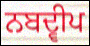
ਨਬਦ੍ਵੀਪ